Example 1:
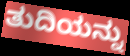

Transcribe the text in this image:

ತುದಿಯನ್ನು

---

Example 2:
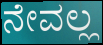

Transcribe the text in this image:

ನೇವಲ್ಲ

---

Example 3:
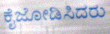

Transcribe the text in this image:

ಕೈಜೋಡಿಸಿದರು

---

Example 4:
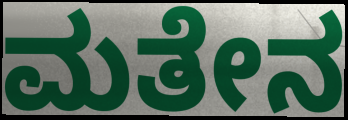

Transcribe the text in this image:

ಮತೇನ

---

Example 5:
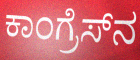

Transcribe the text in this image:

ಕಾಂಗ್ರೆಸ್‍ನ